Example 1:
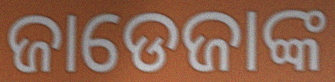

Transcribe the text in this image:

ଜାଡେଜାଙ୍କ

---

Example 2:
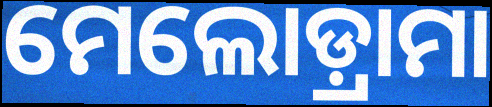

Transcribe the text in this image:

ମେଲୋଡ଼୍ରାମା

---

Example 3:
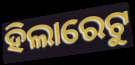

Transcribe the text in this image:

ହିଲାରେଟୁ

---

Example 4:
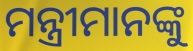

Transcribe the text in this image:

ମନ୍ତ୍ରୀମାନଙ୍କୁ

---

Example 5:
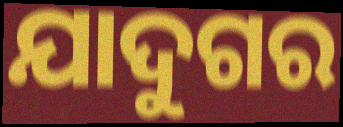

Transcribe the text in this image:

ଯାଦୁଗର